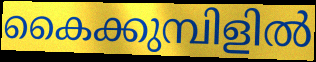
കൈക്കുമ്പിളിൽ